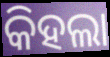
କିହଲା